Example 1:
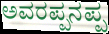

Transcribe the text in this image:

ಅವರಪ್ಪನಪ್ಪ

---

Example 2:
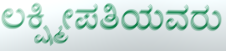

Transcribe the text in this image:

ಲಕ್ಷ್ಮೀಪತಿಯವರು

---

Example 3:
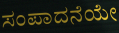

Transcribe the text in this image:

ಸಂಪಾದನೆಯೇ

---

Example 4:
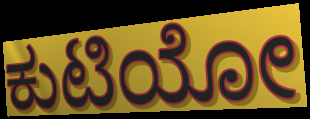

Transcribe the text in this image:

ಕುಟಿಯೋ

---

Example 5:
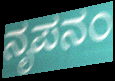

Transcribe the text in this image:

ನೃಪನಂ